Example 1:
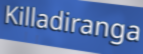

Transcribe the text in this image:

Killadiranga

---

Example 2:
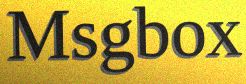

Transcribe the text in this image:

Msgbox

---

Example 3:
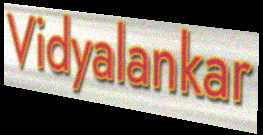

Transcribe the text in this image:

Vidyalankar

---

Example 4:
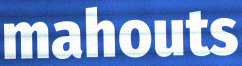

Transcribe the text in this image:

mahouts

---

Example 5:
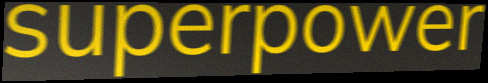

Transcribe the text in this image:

superpower